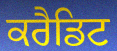
ਕਰੈਡਿਟ